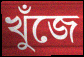
খুঁজে